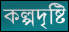
কল্পদৃষ্টি